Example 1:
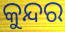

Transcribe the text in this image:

କୁନ୍ଦର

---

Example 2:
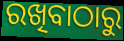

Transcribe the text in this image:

ରଖିବାଠାରୁ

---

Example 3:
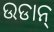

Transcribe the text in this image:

ଉଡାନ୍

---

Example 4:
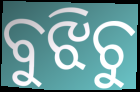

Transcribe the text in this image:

ବୁଝିଚୁ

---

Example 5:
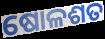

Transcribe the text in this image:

ଷୋଳଶତ